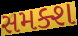
સમક્શ